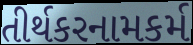
તીર્થકરનામકર્મ